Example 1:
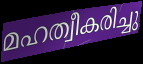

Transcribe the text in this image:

മഹത്വീകരിച്ചു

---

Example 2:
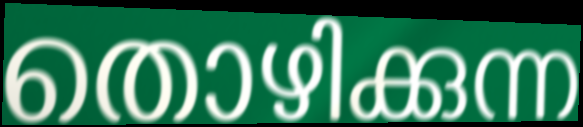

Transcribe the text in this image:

തൊഴിക്കുന്ന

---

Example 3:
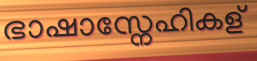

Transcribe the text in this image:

ഭാഷാസ്നേഹികള്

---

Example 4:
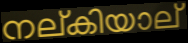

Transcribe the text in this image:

നല്കിയാല്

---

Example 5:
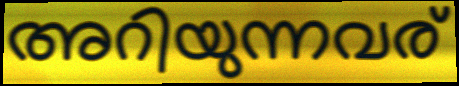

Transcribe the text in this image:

അറിയുന്നവര്